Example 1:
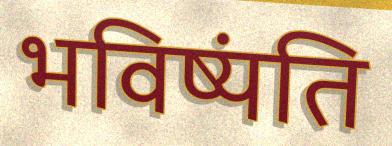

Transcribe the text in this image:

भविष्यंति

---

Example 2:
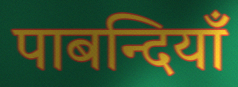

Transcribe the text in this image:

पाबन्दियाँ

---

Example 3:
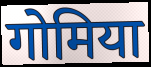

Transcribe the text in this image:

गोमिया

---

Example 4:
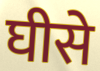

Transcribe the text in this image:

घीसे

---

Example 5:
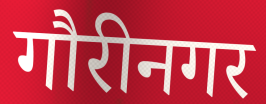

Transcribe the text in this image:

गौरीनगर